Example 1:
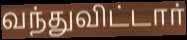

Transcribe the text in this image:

வந்துவிட்டார்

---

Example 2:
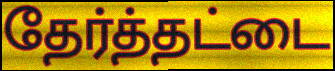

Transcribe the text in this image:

தேர்த்தட்டை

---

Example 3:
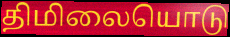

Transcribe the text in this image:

திமிலையொடு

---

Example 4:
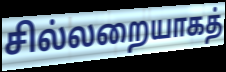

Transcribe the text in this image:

சில்லறையாகத்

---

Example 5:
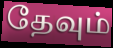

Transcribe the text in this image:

தேவும்